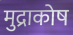
मुद्राकोष